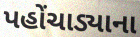
પહોંચાડ્યાના